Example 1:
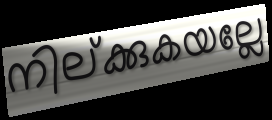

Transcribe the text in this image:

നില്ക്കുകയല്ലേ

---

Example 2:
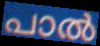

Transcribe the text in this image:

പാൽ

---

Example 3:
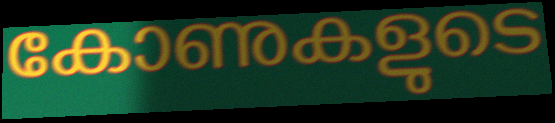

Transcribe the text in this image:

കോണുകളുടെ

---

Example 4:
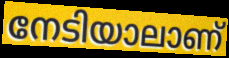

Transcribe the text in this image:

നേടിയാലാണ്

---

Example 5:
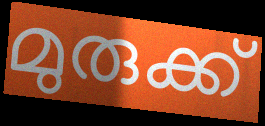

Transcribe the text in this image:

മുരുക്ക്